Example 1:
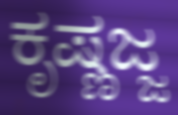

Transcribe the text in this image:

ಕೃಷ್ಣಜ್ಜ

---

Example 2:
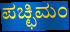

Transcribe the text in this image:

ಪಚ್ಛಿಮಂ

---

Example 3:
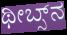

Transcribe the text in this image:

ಥೀಬ್ಸ್‌ನ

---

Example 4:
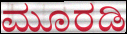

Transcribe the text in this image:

ಮೂರಡಿ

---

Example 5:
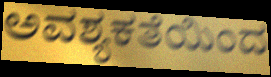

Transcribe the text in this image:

ಅವಶ್ಯಕತೆಯಿಂದ